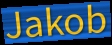
Jakob